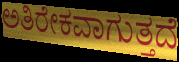
ಅತಿರೇಕವಾಗುತ್ತದೆ